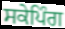
ਸਕੇਪਿੰਗ